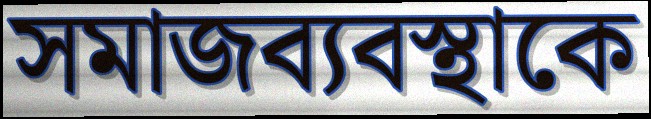
সমাজব্যবস্থাকে